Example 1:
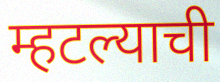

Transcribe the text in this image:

म्हटल्याची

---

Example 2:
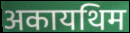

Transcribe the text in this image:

अकायथिम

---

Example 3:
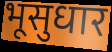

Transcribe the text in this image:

भूसुधार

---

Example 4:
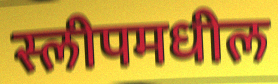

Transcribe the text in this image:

स्लीपमधील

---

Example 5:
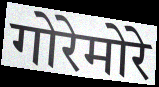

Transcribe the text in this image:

गोरेमोरे